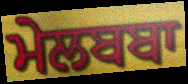
ਮੇਲਬਬਾ